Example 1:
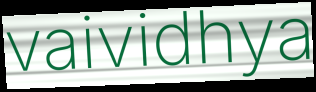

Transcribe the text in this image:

vaividhya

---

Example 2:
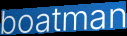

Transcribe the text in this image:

boatman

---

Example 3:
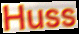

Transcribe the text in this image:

Huss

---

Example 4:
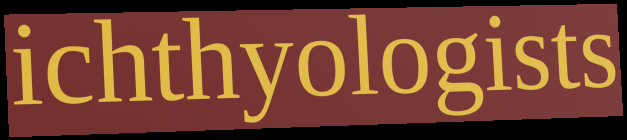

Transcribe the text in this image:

ichthyologists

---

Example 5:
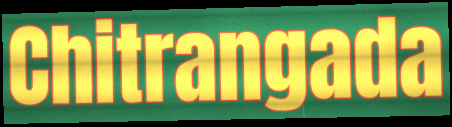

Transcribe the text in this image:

Chitrangada